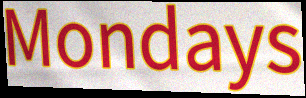
Mondays